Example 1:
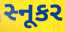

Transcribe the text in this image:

સ્નૂકર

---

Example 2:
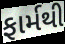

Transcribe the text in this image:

ફાર્મથી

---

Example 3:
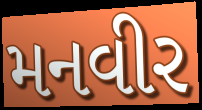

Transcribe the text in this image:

મનવીર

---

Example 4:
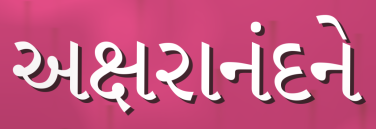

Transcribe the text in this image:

અક્ષરાનંદને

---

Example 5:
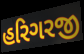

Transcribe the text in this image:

હરિગરજી